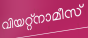
വിയറ്റ്നാമീസ്